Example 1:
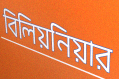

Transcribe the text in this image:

বিলিয়নিয়ার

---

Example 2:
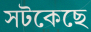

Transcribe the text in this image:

সটকেছে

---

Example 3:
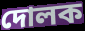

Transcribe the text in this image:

দোলক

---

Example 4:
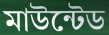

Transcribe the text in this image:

মাউন্টেড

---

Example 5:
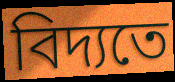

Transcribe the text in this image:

বিদ্যতে